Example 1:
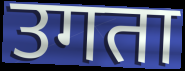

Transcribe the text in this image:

उगता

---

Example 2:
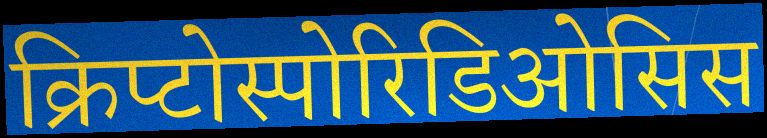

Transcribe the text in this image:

क्रिप्टोस्पोरिडिओसिस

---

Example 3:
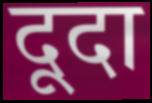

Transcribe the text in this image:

दूदा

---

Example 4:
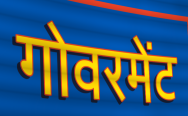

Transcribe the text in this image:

गोवरमेंट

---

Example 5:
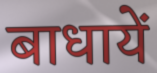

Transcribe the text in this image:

बाधायें